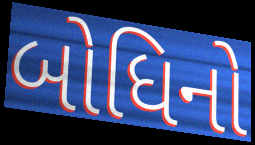
બોધિનો